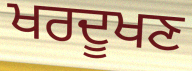
ਖਰਦੂਖਣ